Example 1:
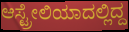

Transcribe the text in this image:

ಆಸ್ಟ್ರೇಲಿಯಾದಲ್ಲಿದ್ದ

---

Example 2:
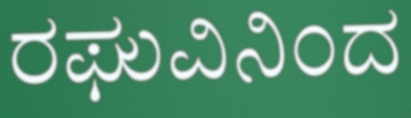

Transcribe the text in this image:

ರಘುವಿನಿಂದ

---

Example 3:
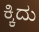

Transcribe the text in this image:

ಕ್ಕಿದು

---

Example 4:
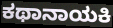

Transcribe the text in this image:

ಕಥಾನಾಯಕಿ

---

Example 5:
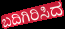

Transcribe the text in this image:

ಬದಿಗಿರಿಸಿದ